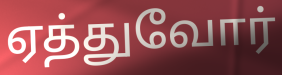
ஏத்துவோர்